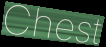
Chest